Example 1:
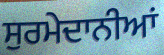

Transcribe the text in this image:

ਸੁਰਮੇਦਾਨੀਆਂ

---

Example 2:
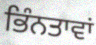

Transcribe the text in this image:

ਭਿੰਨਤਾਵਾਂ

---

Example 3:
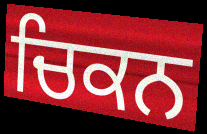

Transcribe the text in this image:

ਚਿਕਨ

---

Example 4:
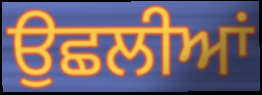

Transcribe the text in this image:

ਉਛਲੀਆਂ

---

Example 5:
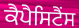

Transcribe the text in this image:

ਕੈਪੈਸਿਟੈਂਸ